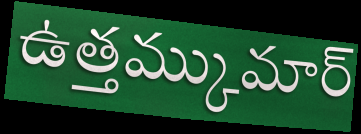
ఉత్తమ్కుమార్